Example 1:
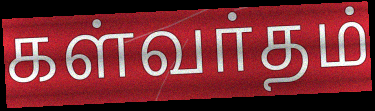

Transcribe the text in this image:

கள்வர்தம்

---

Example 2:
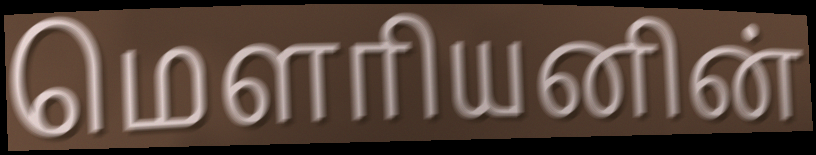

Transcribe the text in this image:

மௌரியனின்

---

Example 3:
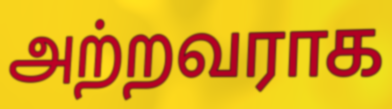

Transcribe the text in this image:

அற்றவராக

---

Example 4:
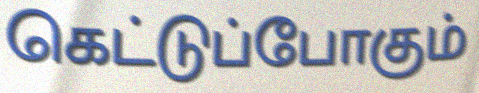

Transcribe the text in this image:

கெட்டுப்போகும்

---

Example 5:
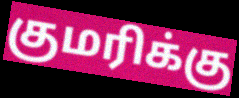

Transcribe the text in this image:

குமரிக்கு